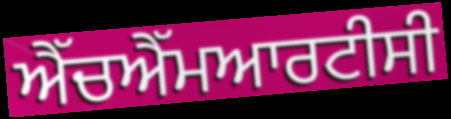
ਐੱਚਐੱਮਆਰਟੀਸੀ